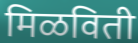
मिळविती